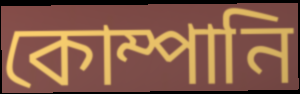
কোম্পানি